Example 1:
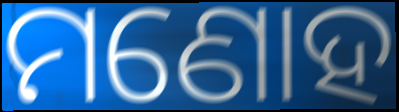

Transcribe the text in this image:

ମଣୋହ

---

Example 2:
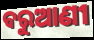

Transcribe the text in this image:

ବରୁଆଣୀ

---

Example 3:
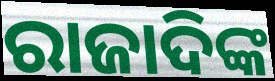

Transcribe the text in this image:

ରାଜାଦିଙ୍କ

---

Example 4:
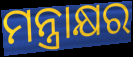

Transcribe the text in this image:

ମନ୍ତ୍ରାକ୍ଷର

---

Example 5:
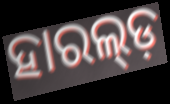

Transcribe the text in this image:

ହାରଲ୍ଡ଼